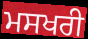
ਮਸਖਰੀ